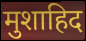
मुशाहिद